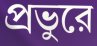
প্রভুরে